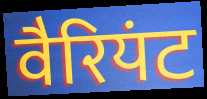
वैरियंट